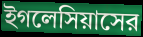
ইগলেসিয়াসের